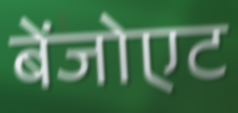
बेंजोएट